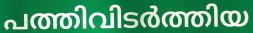
പത്തിവിടർത്തിയ